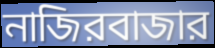
নাজিরবাজার